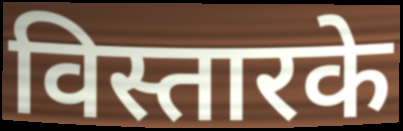
विस्तारके